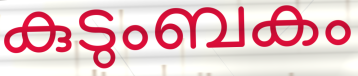
കുടുംബകം